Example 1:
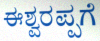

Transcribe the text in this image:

ಈಶ್ವರಪ್ಪಗೆ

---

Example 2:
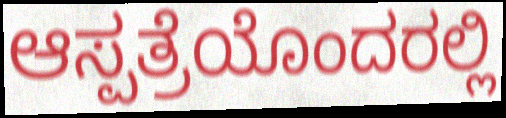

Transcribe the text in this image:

ಆಸ್ಪತ್ರೆಯೊಂದರಲ್ಲಿ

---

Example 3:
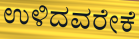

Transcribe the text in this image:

ಉಳಿದವರೇಕೆ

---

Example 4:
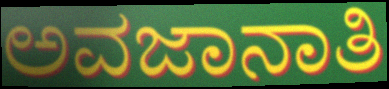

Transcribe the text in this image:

ಅವಜಾನಾತಿ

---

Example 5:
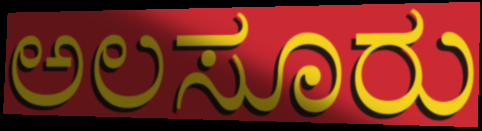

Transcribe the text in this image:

ಅಲಸೂರು